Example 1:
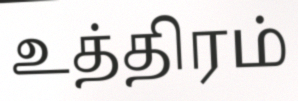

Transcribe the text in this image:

உத்திரம்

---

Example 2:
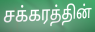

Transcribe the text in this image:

சக்கரத்தின்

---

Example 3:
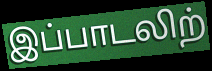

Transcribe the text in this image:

இப்பாடலிற்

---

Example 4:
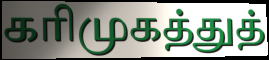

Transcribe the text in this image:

கரிமுகத்துத்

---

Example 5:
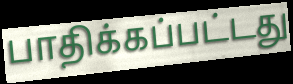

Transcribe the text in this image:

பாதிக்கப்பட்டது